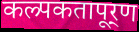
कल्पकतापूर्ण